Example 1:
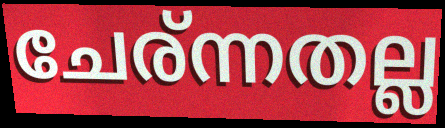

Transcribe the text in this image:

ചേര്ന്നതല്ല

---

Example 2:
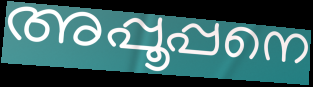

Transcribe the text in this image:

അപ്പൂപ്പനെ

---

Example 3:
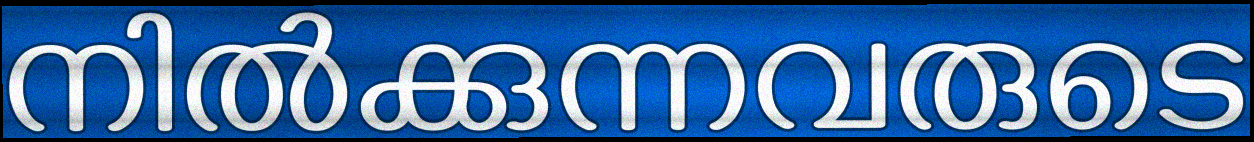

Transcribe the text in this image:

നിൽക്കുന്നവരുടെ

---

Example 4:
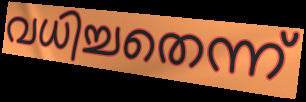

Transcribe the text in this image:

വധിച്ചതെന്ന്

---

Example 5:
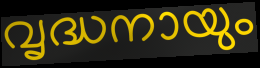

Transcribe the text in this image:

വൃദ്ധനായും